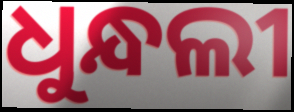
ଧୁନ୍ଧଲୀ